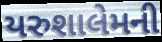
યરુશાલેમની